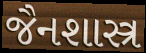
જૈનશાસ્ત્ર